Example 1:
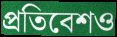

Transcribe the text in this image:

প্রতিবেশও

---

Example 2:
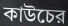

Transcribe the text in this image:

কাউচের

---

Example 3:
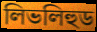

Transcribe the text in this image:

লিভলিহুড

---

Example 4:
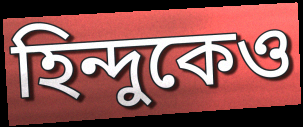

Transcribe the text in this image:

হিন্দুকেও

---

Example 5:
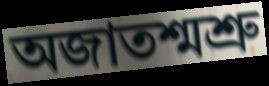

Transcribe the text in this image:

অজাতশ্মশ্রু